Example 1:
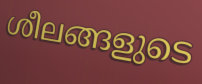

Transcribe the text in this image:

ശീലങ്ങളുടെ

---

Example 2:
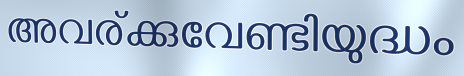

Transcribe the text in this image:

അവര്ക്കുവേണ്ടിയുദ്ധം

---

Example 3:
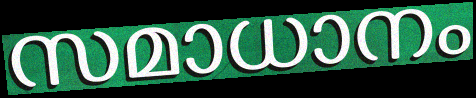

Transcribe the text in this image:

സമാധാനം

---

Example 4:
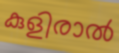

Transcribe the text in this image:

കുളിരാൽ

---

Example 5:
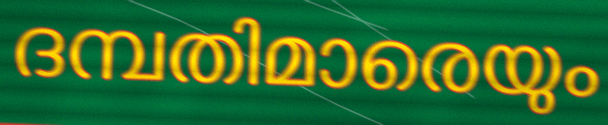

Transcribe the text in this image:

ദമ്പതിമാരെയും